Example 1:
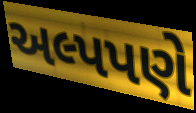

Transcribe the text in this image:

અલ્પપણે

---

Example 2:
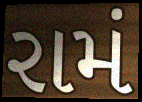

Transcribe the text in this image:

રામં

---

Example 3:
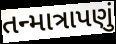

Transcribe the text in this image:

તન્માત્રાપણું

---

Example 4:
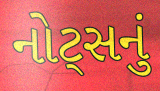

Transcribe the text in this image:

નોટ્સનું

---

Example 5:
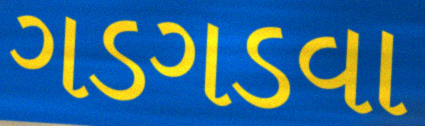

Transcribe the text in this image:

ગડગડવા